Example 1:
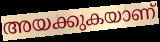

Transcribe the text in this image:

അയക്കുകയാണ്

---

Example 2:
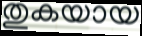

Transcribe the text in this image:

തുകയായ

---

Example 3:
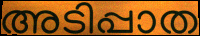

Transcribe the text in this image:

അടിപ്പാത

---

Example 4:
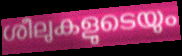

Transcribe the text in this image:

ശീലുകളുടെയും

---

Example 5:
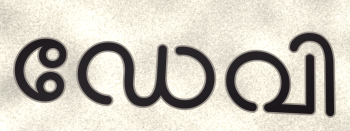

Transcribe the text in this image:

ഡേവി